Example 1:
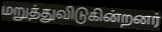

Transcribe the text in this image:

மறுத்துவிடுகின்றனர்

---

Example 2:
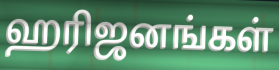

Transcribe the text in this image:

ஹரிஜனங்கள்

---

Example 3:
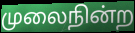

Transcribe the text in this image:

முலைநின்ற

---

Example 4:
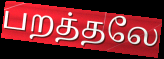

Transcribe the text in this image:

பறத்தலே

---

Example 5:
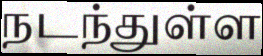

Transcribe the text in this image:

நடந்துள்ள